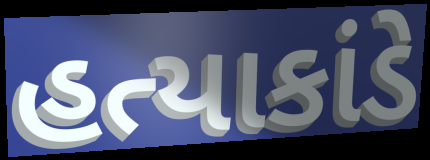
હત્યાકાંડે